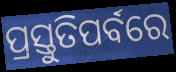
ପ୍ରସ୍ତୁତିପର୍ବରେ